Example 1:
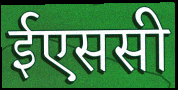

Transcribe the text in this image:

ईएससी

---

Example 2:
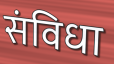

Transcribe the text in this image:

संविधा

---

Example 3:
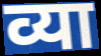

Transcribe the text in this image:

व्या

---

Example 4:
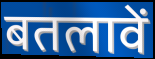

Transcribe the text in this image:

बतलावें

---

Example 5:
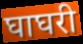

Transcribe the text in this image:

घाघरी